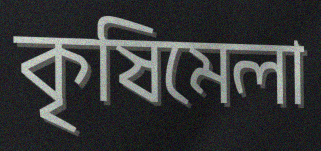
কৃষিমেলা